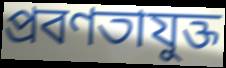
প্রবণতাযুক্ত